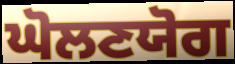
ਘੋਲਣਯੋਗ